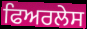
ਫਿਅਰਲੇਸ